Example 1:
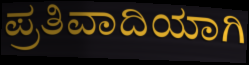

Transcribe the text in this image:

ಪ್ರತಿವಾದಿಯಾಗಿ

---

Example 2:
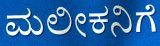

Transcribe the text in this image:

ಮಲೀಕನಿಗೆ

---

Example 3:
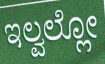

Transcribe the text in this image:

ಇಲ್ವಲ್ಲೋ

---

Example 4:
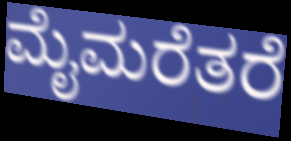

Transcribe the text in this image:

ಮೈಮರೆತರೆ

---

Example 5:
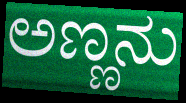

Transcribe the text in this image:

ಅಣ್ಣನು